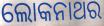
ଲୋକନାଥର